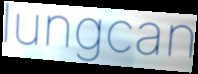
lungcan